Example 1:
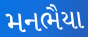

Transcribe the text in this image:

મનભૈયા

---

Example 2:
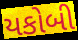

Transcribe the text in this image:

યકોબી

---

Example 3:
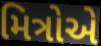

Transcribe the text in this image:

મિત્રોએ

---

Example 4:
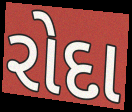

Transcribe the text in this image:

રોદા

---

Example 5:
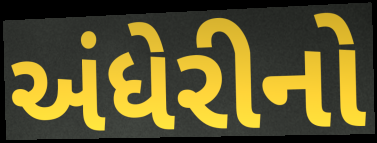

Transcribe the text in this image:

અંધેરીનો